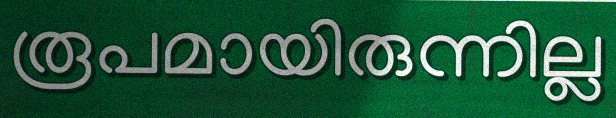
രൂപമായിരുന്നില്ല